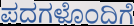
ಪದಗಳೊಂದಿಗೆ